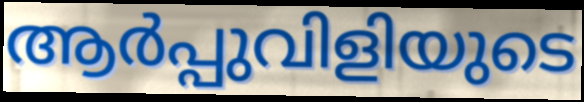
ആർപ്പുവിളിയുടെ